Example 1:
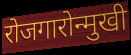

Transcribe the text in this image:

रोजगारोन्मुखी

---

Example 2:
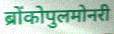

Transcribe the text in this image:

ब्रोंकोपुलमोनरी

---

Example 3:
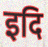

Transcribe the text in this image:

इदि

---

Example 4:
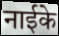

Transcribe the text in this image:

नाईके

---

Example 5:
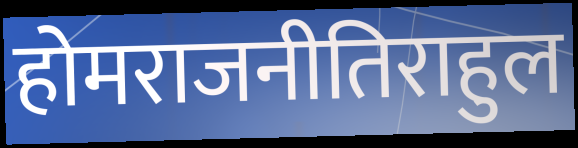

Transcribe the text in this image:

होमराजनीतिराहुल